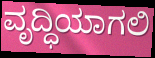
ವೃದ್ಧಿಯಾಗಲಿ